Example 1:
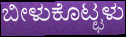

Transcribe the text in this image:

ಬೀಳುಕೊಟ್ಟಳು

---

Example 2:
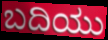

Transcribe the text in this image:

ಬದಿಯು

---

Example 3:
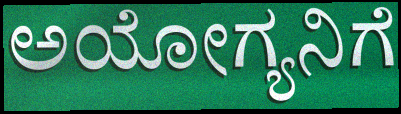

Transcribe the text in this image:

ಅಯೋಗ್ಯನಿಗೆ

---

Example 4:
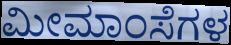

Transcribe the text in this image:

ಮೀಮಾಂಸೆಗಳ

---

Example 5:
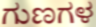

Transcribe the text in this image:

ಗುಣಗಳ